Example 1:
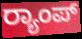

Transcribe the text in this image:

ರ‍್ಯಾಂಪ್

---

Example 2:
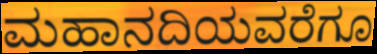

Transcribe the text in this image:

ಮಹಾನದಿಯವರೆಗೂ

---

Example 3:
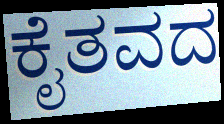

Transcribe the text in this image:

ಕೈತವದ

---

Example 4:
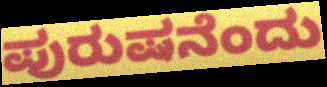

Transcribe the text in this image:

ಪುರುಷನೆಂದು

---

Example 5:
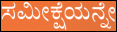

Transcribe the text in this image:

ಸಮೀಕ್ಷೆಯನ್ನೇ